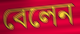
বেলেন